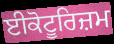
ਈਕੋਟੂਰਿਜ਼ਮ